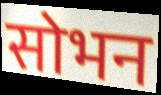
सोभन